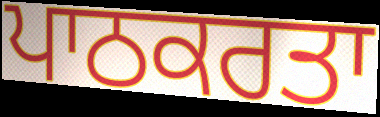
ਪਾਠਕਰਤਾ